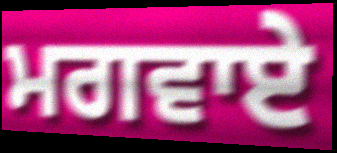
ਮਗਵਾਏ